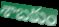
శాబకుం